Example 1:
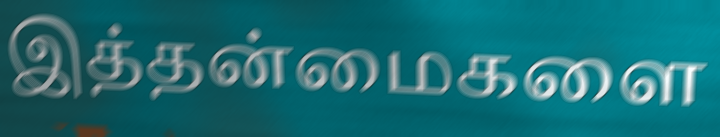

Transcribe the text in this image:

இத்தன்மைகளை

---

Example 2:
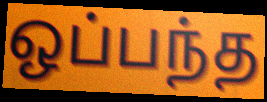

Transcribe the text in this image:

ஒப்பந்த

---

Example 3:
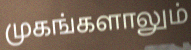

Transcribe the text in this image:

முகங்களாலும்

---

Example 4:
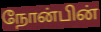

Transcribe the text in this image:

நோன்பின்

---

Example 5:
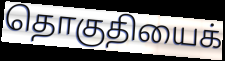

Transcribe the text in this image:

தொகுதியைக்